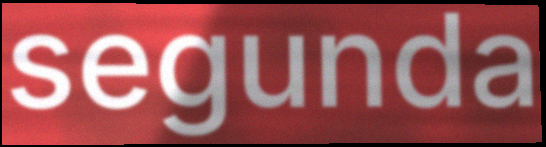
segunda